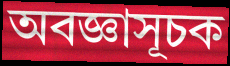
অবজ্ঞাসূচক